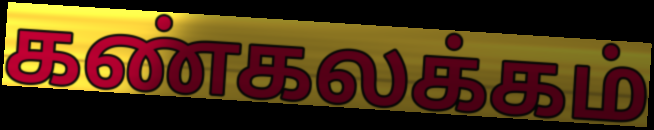
கண்கலக்கம்